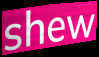
shew